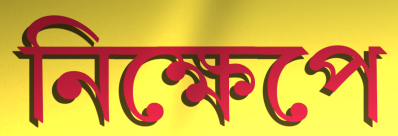
নিক্ষেপে